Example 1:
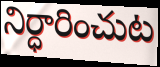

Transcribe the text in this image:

నిర్ధారించుట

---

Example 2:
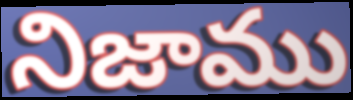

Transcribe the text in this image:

నిజాము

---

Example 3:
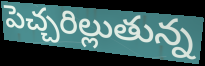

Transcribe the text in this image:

పెచ్చరిల్లుతున్న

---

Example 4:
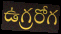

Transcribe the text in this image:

ఉగ్రరోగ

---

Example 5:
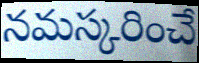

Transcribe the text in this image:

నమస్కరించే